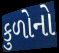
કુળોનો